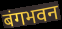
बंगभवन